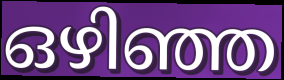
ഒഴിഞ്ഞ